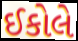
ઈકોલે